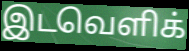
இடவெளிக்